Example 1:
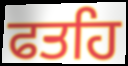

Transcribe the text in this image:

ਫਤਹਿ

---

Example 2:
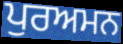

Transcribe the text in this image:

ਪੁਰਅਮਨ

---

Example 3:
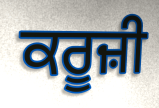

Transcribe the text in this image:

ਕਰੂਜ਼ੀ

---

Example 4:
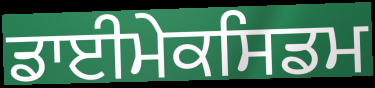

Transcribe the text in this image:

ਡਾਈਮੇਕਸਿਡਮ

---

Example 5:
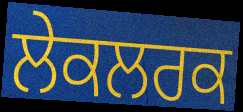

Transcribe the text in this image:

ਲੇਕਲਰਕ